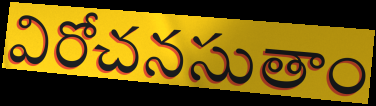
విరోచనసుతాం